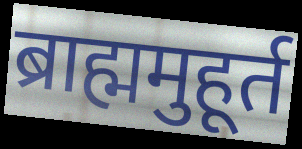
ब्राह्ममुहूर्त